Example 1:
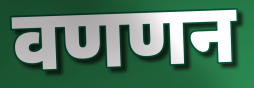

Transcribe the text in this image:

वणणन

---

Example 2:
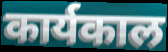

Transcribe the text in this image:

कार्यकाल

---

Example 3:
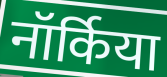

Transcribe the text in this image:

नॉर्किया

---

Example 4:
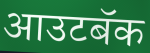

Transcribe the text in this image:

आउटबॅक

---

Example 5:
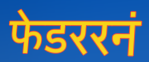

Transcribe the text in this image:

फेडररनं